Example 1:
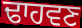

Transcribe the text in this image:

ਢਾਹਵਣ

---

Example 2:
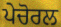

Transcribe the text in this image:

ਪੇਚੋਰਲ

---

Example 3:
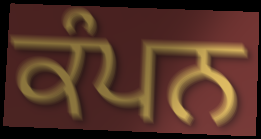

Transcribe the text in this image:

ਕੰਪਨ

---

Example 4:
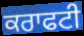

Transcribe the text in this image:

ਕਰਾਫਟੀ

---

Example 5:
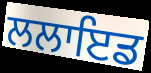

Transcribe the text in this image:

ਲਲਾਇਡ